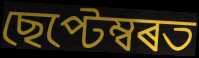
ছেপ্টেম্বৰত